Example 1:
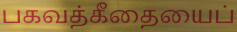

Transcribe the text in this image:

பகவத்கீதையைப்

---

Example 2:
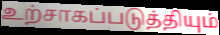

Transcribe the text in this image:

உற்சாகப்படுத்தியும்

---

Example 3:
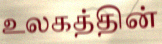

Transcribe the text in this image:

உலகத்தின்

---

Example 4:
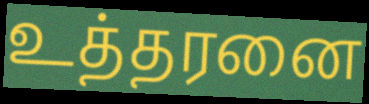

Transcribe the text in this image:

உத்தரனை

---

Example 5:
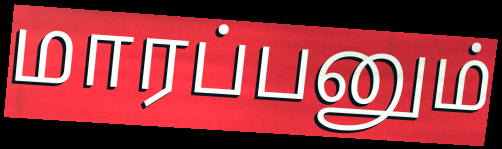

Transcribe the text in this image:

மாரப்பனும்